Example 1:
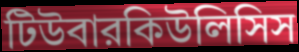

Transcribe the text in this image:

টিউবারকিউলিসিস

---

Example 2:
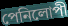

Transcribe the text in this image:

পেনিলোপী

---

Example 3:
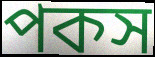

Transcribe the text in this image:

পকস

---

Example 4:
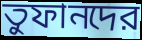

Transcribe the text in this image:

তুফানদের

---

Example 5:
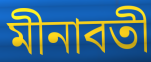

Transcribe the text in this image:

মীনাবতী